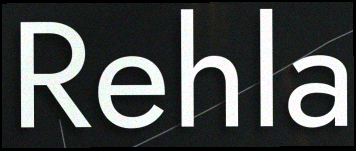
Rehla